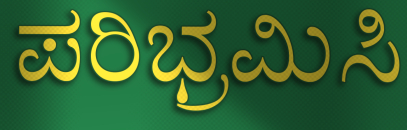
ಪರಿಭ್ರಮಿಸಿ